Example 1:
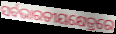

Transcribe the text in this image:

ସର୍ବଭାରତୀୟକ୍ଷେତ୍ରରେ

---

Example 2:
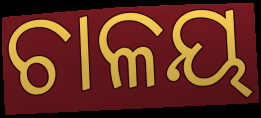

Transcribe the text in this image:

ଚାଳୟ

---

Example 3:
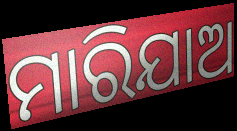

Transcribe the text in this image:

ମାରିଯାଅ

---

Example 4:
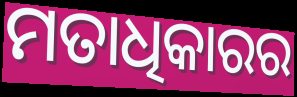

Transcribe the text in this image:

ମତାଧିକାରର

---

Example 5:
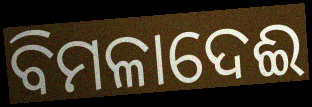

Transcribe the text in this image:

ବିମଳାଦେଈ